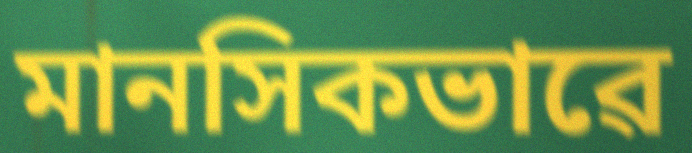
মানসিকভাৱে